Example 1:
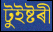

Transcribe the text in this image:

টুইষ্টৰী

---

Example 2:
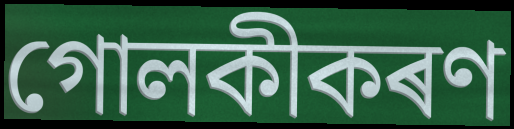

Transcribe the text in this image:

গোলকীকৰণ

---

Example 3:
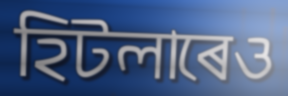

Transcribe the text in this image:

হিটলাৰেও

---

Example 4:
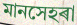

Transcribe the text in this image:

মানসেহৰা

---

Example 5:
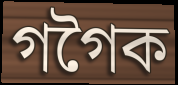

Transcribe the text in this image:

গগৈক